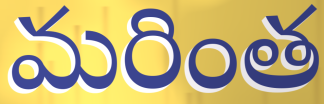
మరింత